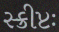
સ્ક્રીપ્ટઃ